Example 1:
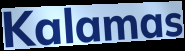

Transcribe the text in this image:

Kalamas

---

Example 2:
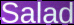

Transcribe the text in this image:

Salad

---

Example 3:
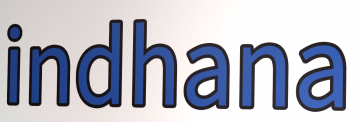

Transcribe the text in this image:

indhana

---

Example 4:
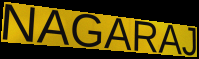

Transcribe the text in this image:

NAGARAJ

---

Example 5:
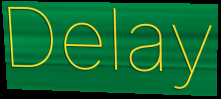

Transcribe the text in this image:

Delay